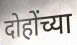
दोहोंच्या